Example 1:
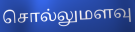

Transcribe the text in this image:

சொல்லுமளவு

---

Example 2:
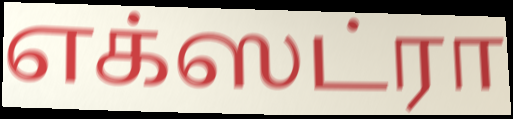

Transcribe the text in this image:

எக்ஸட்ரா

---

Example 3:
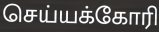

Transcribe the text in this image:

செய்யக்கோரி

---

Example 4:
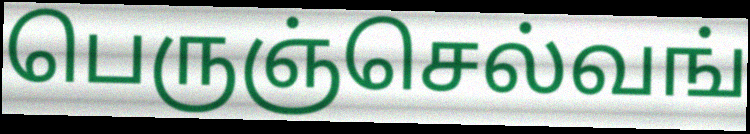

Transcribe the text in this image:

பெருஞ்செல்வங்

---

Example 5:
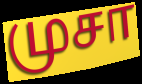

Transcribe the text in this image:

முசா